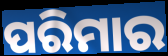
ପରିମାର